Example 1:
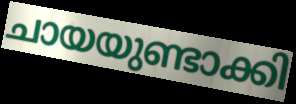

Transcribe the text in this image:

ചായയുണ്ടാക്കി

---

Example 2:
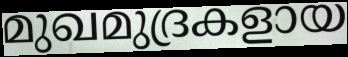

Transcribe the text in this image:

മുഖമുദ്രകളായ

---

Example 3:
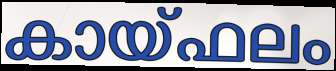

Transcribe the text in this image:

കായ്ഫലം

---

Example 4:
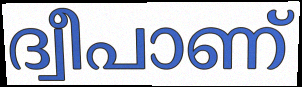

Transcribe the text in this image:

ദ്വീപാണ്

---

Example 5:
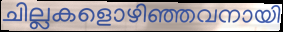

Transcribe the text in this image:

ചില്ലകളൊഴിഞ്ഞവനായി